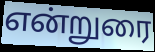
என்றுரை